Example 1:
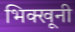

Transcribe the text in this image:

भिक्खूनी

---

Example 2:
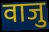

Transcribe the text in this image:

वाजु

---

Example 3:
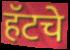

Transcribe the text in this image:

हॅटचे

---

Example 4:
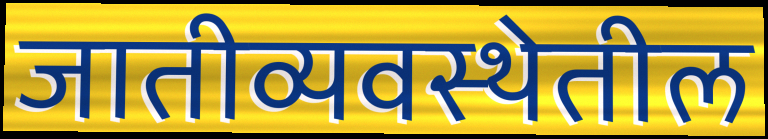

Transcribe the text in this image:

जातीव्यवस्थेतील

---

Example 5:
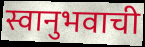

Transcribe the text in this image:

स्वानुभवाची